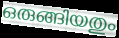
ഒരുങ്ങിയതും